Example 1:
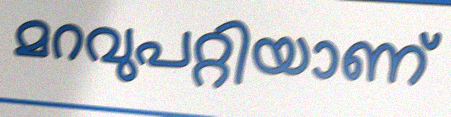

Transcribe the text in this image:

മറവുപറ്റിയാണ്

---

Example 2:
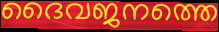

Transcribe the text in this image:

ദൈവജനത്തെ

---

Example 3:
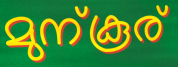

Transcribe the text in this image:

മുന്കൂര്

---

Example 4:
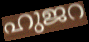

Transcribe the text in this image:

ഹുജറ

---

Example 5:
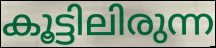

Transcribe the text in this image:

കൂട്ടിലിരുന്ന